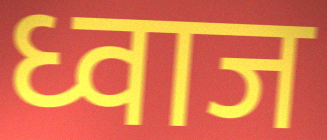
ध्वाज